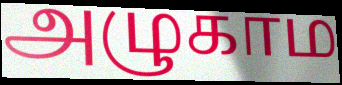
அழுகாம